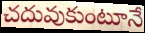
చదువుకుంటూనే